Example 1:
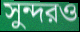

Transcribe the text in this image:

সুন্দরও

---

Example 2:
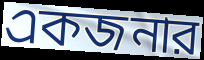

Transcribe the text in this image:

একজনার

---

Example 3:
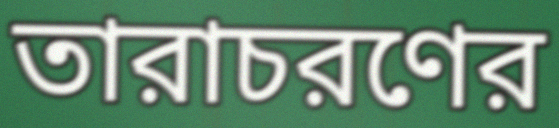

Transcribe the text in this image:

তারাচরণের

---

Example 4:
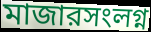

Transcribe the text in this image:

মাজারসংলগ্ন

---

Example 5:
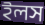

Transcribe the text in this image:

ইলস